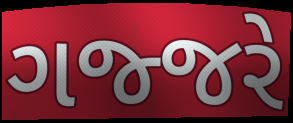
ગજ્જરે